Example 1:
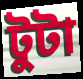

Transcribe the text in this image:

টুটা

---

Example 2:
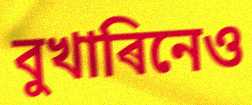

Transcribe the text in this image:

বুখাৰিনেও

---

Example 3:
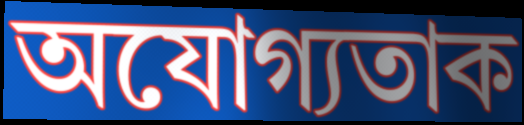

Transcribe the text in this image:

অযোগ্যতাক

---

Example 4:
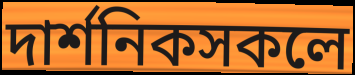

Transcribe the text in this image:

দাৰ্শনিকসকলে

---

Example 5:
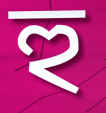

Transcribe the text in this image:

হু